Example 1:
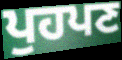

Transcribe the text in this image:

ਪੁਹਪਣ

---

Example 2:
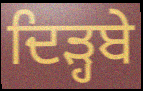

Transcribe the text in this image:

ਦਿੜ੍ਹਬੇ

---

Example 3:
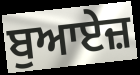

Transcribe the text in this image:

ਬੁਆਏਜ਼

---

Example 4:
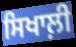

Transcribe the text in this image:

ਸਿਖਾਲ਼ੀ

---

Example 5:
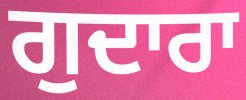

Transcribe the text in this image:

ਗੁਦਾਰਾ